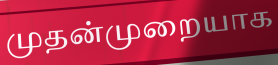
முதன்முறையாக